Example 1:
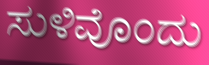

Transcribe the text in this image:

ಸುಳಿವೊಂದು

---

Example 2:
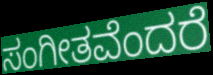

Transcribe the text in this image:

ಸಂಗೀತವೆಂದರೆ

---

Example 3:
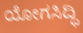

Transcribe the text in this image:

ಯೋಗಸಿದ್ಧಿ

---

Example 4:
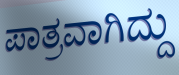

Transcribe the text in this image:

ಪಾತ್ರವಾಗಿದ್ದು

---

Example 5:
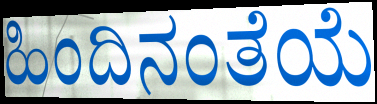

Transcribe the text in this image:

ಹಿಂದಿನಂತೆಯೆ